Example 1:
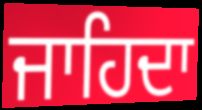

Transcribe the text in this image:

ਜਾਹਿਦਾ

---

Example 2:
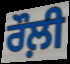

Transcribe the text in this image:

ਰੌਲ਼ੀ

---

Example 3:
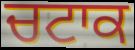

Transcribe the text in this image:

ਚਟਾਕ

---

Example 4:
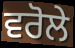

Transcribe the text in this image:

ਵਰੋਲੇ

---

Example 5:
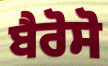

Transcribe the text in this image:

ਬੈਰੋਸੋ